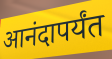
आनंदापर्यंत